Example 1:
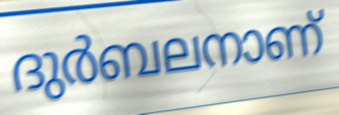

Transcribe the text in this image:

ദുർബലനാണ്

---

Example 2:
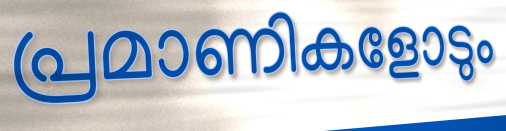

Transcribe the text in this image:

പ്രമാണികളോടും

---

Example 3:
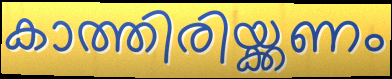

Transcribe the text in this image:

കാത്തിരിയ്ക്കണം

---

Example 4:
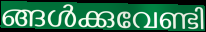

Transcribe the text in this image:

ങ്ങൾക്കുവേണ്ടി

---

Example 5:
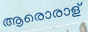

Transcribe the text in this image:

ആരൊരാള്